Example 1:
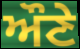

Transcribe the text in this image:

ਔਣੇ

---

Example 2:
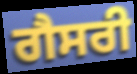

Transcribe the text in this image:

ਗੈਸਰੀ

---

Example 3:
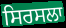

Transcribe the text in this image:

ਸਿਰਸਲਾ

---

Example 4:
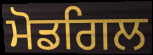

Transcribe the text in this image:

ਮੋਡਗਿਲ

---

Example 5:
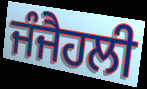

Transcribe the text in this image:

ਜੰਜੈਹਲੀ